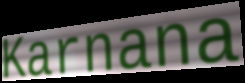
Karnana